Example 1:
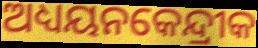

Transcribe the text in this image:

ଅଧ୍ୟୟନକେନ୍ଦ୍ରୀକ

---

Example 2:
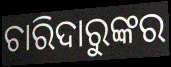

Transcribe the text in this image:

ଚାରିଦାରୁଙ୍କର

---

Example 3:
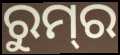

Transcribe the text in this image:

ରୁମ୍‍ର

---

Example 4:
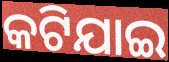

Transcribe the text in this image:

କଟିଯାଇ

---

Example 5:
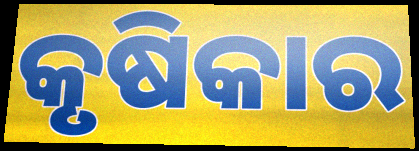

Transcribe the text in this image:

କୃଷିକାର